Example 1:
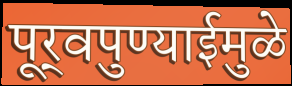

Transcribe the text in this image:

पूर्वपुण्याईमुळे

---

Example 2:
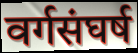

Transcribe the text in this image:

वर्गसंघर्ष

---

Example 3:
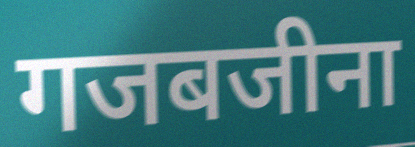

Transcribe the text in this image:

गजबजीना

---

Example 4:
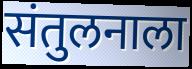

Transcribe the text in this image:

संतुलनाला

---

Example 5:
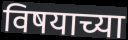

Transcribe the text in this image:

विषयाच्या